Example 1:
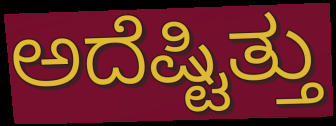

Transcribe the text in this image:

ಅದೆಷ್ಟಿತ್ತು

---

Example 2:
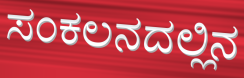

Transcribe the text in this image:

ಸಂಕಲನದಲ್ಲಿನ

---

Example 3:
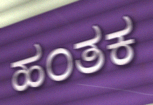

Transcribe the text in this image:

ಹಂತಕ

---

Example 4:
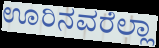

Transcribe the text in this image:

ಊರಿನವರೆಲ್ಲಾ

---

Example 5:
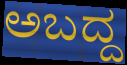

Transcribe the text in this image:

ಅಬದ್ದ